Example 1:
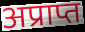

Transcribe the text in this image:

अप्राप्त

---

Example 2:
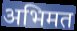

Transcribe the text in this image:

अभिमत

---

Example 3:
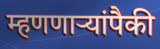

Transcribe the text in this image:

म्हणणाऱ्यांपैकी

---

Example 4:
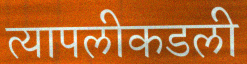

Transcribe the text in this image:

त्यापलीकडली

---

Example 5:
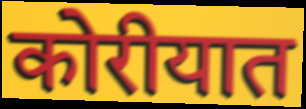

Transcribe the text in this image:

कोरीयात